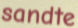
sandte